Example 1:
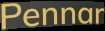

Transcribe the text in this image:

Pennar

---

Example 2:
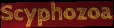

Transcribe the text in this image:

Scyphozoa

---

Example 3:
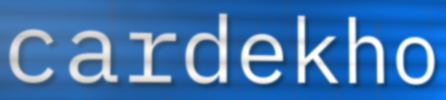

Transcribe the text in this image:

cardekho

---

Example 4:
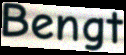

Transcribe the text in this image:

Bengt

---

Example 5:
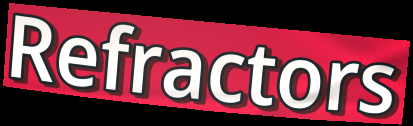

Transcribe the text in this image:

Refractors